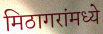
मिठागरांमध्ये